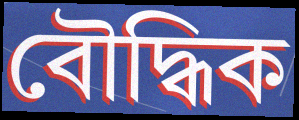
বৌদ্ধিক